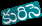
కురిసె